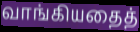
வாங்கியதைத்